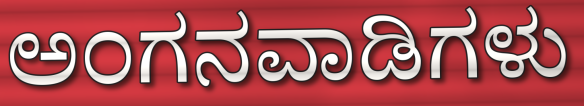
ಅಂಗನವಾಡಿಗಳು